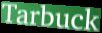
Tarbuck